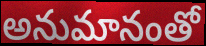
అనుమానంతో